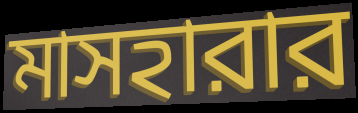
মাসহারার